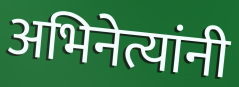
अभिनेत्यांनी